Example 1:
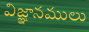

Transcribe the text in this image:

విజ్ఞానములు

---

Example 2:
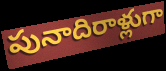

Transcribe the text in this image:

పునాదిరాళ్లుగా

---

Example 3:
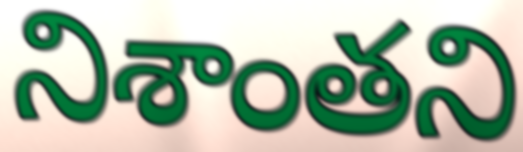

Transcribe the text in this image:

నిశాంతని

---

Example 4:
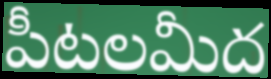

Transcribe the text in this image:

పీటలమీద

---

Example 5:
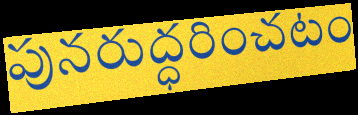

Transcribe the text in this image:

పునరుద్ధరించటం